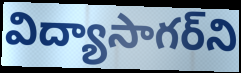
విద్యాసాగర్‌ని